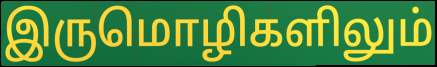
இருமொழிகளிலும்